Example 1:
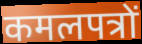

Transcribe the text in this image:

कमलपत्रों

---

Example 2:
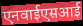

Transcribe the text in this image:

एनवाईएसआई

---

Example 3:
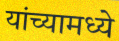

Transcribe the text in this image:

यांच्यामध्ये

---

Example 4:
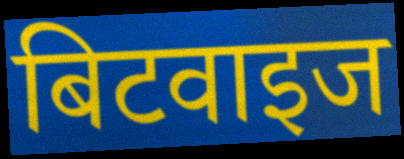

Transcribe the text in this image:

बिटवाइज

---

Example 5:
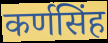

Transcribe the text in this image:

कर्णसिंह